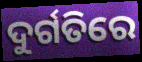
ଦୁର୍ଗତିରେ